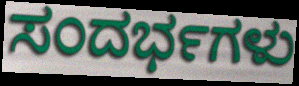
ಸಂದರ್ಭಗಳು